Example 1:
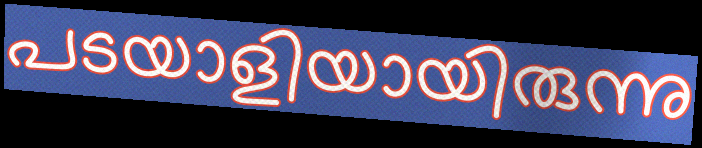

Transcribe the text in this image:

പടയാളിയായിരുന്നു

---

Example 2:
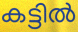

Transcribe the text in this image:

കട്ടിൽ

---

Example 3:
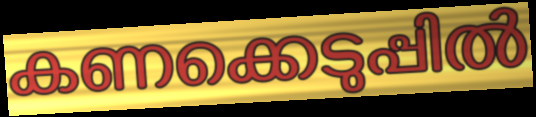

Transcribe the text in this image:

കണക്കെടുപ്പിൽ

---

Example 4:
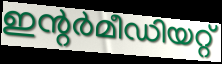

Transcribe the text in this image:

ഇന്റർമീഡിയറ്റ്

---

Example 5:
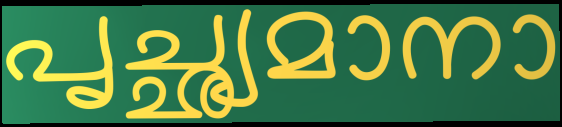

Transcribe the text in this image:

പൃച്ഛ്യമാനാ